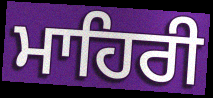
ਮਾਹਿਰੀ